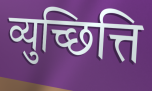
व्युच्छित्ति